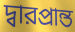
দ্বারপ্রান্ত